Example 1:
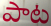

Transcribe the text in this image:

పాట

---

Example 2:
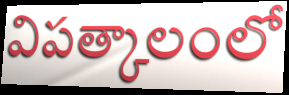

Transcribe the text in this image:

విపత్కాలంలో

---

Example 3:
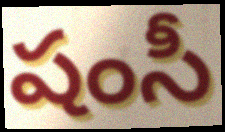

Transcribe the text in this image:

షంసీ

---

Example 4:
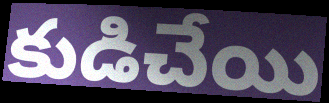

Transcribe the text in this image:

కుడిచేయి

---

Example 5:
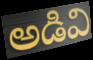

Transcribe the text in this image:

అడివి